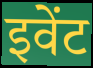
इवेंट